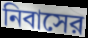
নিবাসের